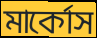
মার্কোস